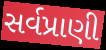
સર્વપ્રાણી